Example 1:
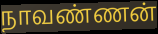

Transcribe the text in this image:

நாவண்ணன்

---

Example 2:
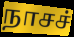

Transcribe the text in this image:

நாசச்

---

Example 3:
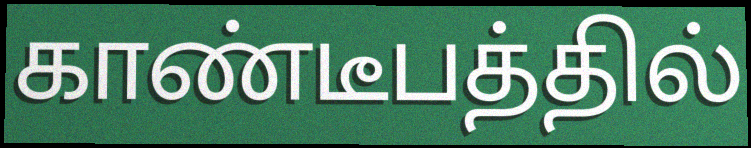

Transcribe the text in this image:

காண்டீபத்தில்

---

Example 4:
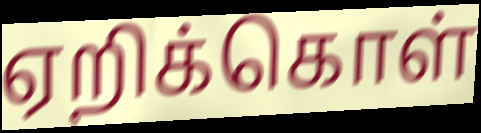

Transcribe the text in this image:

ஏறிக்கொள்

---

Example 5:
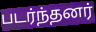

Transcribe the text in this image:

படர்ந்தனர்